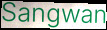
Sangwan